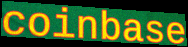
coinbase